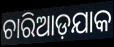
ଚାରିଆଡ଼ଯାକ